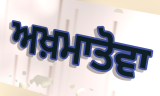
ਅਖ਼ਮਾਤੋਵਾ